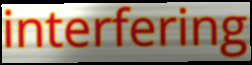
interfering